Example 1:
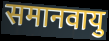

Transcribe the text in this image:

समानवायु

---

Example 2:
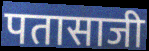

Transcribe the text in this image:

पतासाजी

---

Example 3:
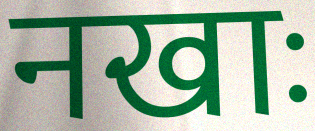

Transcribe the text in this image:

नखाः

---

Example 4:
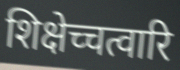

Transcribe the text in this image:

शिक्षेच्चत्वारि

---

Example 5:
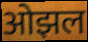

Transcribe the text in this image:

ओझल